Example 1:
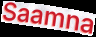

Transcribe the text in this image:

Saamna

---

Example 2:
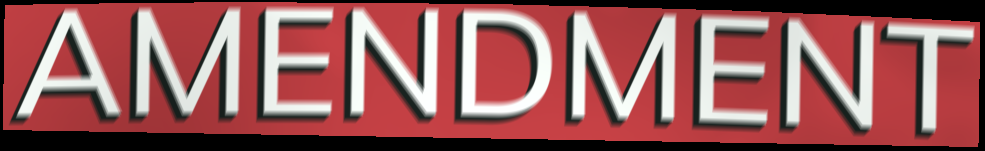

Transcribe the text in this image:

AMENDMENT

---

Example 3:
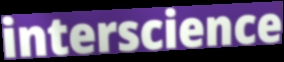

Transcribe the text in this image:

interscience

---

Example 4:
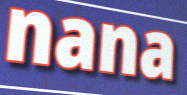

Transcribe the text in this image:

nana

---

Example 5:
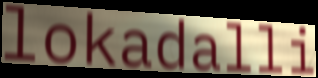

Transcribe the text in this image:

lokadalli